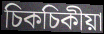
চিকচিকীয়া